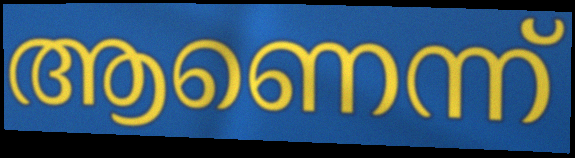
ആണെന്ന്